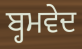
ਬ੍ਹਮਵੇਦ